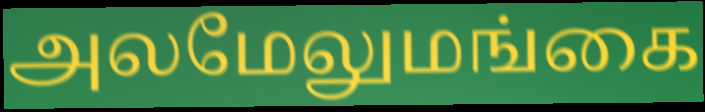
அலமேலுமங்கை